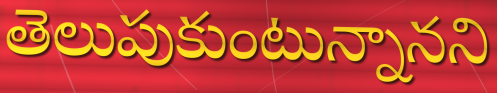
తెలుపుకుంటున్నానని